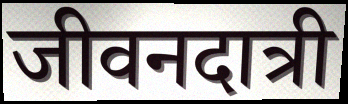
जीवनदात्री